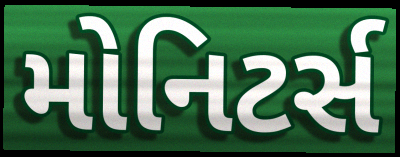
મોનિટર્સ